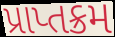
પ્રાપ્તક્રમ